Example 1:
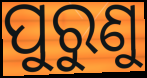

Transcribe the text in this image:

ପୁରୁଣୁ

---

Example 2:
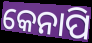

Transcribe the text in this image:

କେନାପି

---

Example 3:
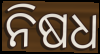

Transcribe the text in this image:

ନିଷଧ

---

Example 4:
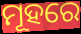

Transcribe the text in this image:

ମୂହରେ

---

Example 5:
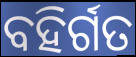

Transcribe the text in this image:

ବହିର୍ଗତ